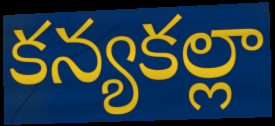
కన్యకల్లా